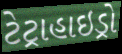
ટેટ્રાહાઇડ્રો